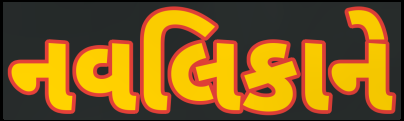
નવલિકાને